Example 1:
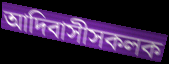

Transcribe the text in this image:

আদিবাসীসকলক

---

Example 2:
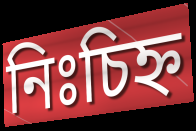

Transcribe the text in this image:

নিঃচিহ্ন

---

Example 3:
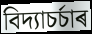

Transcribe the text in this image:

বিদ্যাচৰ্চাৰ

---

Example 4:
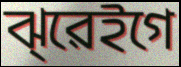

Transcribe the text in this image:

ঝ্ৱেইগে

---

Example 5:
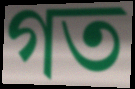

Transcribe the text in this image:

গত